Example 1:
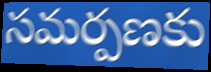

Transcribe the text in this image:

సమర్పణకు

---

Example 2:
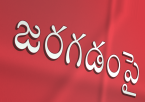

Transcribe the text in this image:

జరగడంపై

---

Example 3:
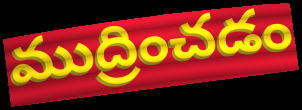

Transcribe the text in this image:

ముద్రించడం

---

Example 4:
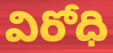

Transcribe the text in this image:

విరోధి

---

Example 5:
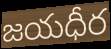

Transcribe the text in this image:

జయధీర